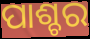
ପାଶ୍ଚର